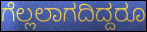
ಗೆಲ್ಲಲಾಗದಿದ್ದರೂ